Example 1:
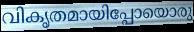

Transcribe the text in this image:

വികൃതമായിപ്പോയൊരു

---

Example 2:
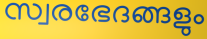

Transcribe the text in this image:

സ്വരഭേദങ്ങളും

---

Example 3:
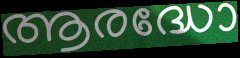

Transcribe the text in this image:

ആരദ്ധോ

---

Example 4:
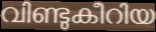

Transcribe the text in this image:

വിണ്ടുകീറിയ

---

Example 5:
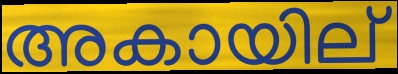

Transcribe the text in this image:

അകായില്